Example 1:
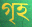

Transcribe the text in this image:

গৃহ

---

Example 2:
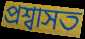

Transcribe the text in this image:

প্ৰশ্বাসত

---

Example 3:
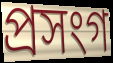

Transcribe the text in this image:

প্ৰসংগ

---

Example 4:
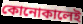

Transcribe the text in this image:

কোনোকালেই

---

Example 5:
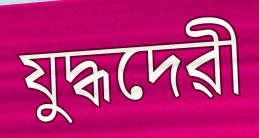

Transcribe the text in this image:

যুদ্ধদেৱী